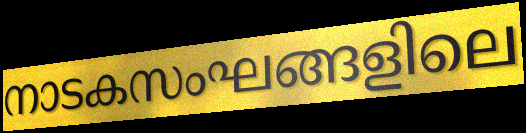
നാടകസംഘങ്ങളിലെ